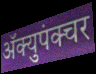
ॲक्युपंक्चर